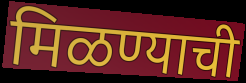
मिळण्याची